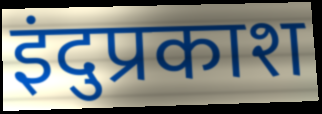
इंदुप्रकाश